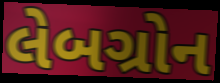
લેબગ્રોન